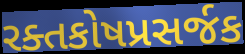
રક્તકોષપ્રસર્જક